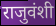
राजुवंशी